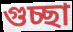
গুচ্ছা